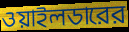
ওয়াইলডারের